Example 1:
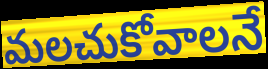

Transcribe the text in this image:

మలచుకోవాలనే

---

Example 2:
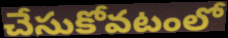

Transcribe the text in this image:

చేసుకోవటంలో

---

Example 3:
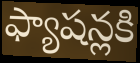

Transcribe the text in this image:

ఫ్యాషన్లకి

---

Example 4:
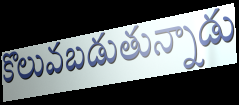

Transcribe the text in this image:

కొలువబడుతున్నాడు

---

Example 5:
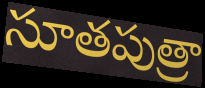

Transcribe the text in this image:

సూతపుత్రా